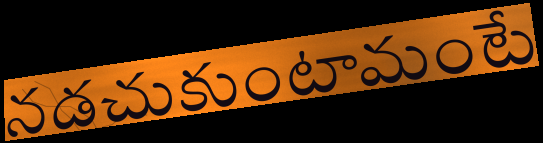
నడచుకుంటామంటే